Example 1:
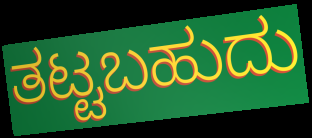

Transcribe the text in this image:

ತಟ್ಟಬಹುದು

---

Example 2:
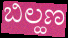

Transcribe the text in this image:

ಬಿಲ್ಹಣ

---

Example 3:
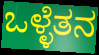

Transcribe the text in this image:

ಒಳ್ಳೆತನ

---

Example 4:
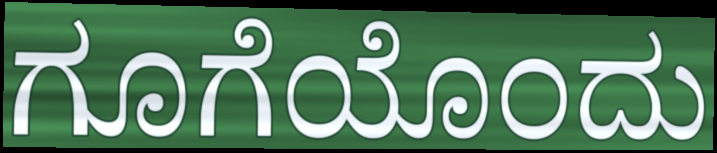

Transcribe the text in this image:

ಗೂಗೆಯೊಂದು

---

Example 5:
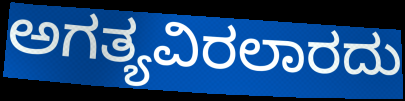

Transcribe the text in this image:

ಅಗತ್ಯವಿರಲಾರದು